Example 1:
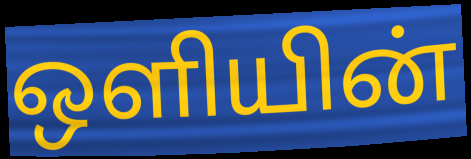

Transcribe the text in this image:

ஒளியின்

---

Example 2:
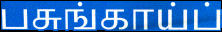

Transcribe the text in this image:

பசுங்காய்ப்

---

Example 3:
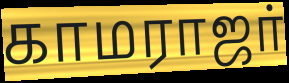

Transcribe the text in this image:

காமராஜர்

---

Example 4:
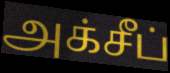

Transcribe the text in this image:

அக்சீப்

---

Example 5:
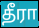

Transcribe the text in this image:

தீரா